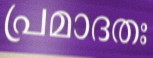
പ്രമാദതഃ